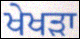
ਖੇਖੜਾ